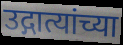
उद्गात्यांच्या